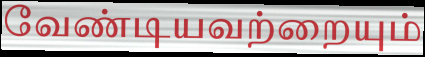
வேண்டியவற்றையும்